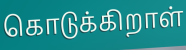
கொடுக்கிறாள்